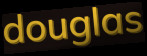
douglas